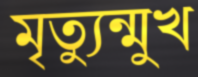
মৃত্যুন্মুখ